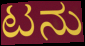
ಟನು